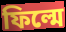
ফিল্মে